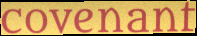
covenant